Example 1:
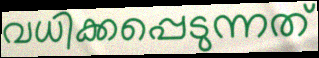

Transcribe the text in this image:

വധിക്കപ്പെടുന്നത്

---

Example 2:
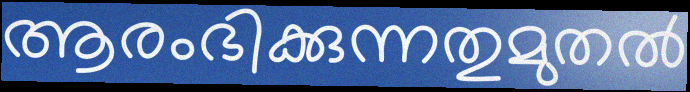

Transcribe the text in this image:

ആരംഭിക്കുന്നതുമുതൽ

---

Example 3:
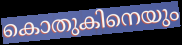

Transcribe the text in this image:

കൊതുകിനെയും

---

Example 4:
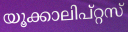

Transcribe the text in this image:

യൂക്കാലിപ്റ്റസ്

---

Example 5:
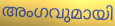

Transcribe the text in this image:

അംഗവുമായി